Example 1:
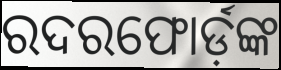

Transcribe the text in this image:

ରଦରଫୋର୍ଡ଼ଙ୍କ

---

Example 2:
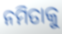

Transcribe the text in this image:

ନମିତାକୁ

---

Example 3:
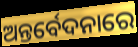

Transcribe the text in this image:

ଅନ୍ତର୍ବେଦନାରେ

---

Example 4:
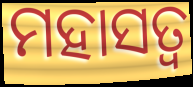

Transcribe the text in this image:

ମହାସତ୍ୱ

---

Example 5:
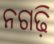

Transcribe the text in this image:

ନଗଢ଼ି